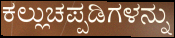
ಕಲ್ಲುಚಪ್ಪಡಿಗಳನ್ನು